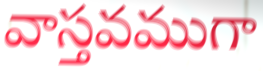
వాస్తవముగా